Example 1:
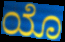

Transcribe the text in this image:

ಯೊ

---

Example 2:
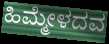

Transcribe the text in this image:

ಹಿಮ್ಮೇಳದವ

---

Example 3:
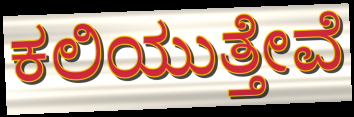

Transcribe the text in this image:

ಕಲಿಯುತ್ತೇವೆ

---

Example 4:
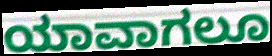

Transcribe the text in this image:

ಯಾವಾಗಲೂ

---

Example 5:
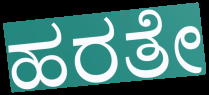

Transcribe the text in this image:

ಹರತೇ